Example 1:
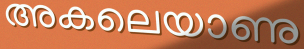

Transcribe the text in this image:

അകലെയാണു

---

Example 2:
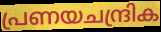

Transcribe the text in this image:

പ്രണയചന്ദ്രിക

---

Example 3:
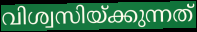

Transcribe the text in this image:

വിശ്വസിയ്ക്കുന്നത്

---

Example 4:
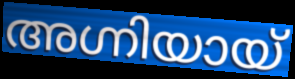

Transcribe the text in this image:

അഗ്നിയായ്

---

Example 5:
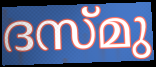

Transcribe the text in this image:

ദസ്മു